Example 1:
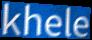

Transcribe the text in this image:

khele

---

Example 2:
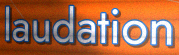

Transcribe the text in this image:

laudation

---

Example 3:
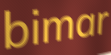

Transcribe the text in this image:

bimar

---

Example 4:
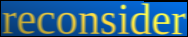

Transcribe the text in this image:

reconsider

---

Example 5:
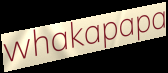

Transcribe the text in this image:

whakapapa